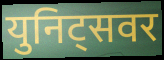
युनिट्सवर